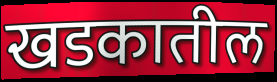
खडकातील